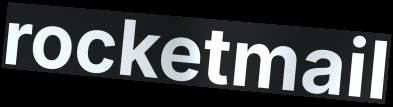
rocketmail